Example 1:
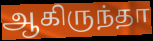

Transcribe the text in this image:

ஆகிருந்தா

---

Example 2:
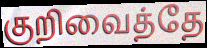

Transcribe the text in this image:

குறிவைத்தே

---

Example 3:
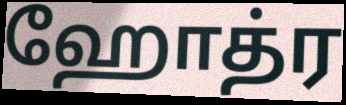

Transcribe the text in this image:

ஹோத்ர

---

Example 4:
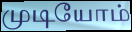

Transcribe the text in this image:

முடியோம்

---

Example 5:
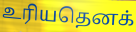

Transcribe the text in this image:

உரியதெனக்